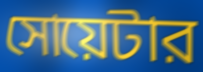
সোয়েটার